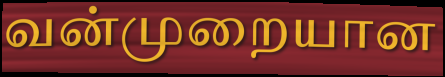
வன்முறையான